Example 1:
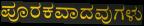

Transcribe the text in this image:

ಪೂರಕವಾದವುಗಳು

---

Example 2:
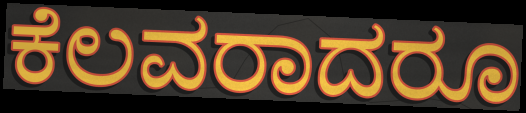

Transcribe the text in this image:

ಕೆಲವರಾದರೂ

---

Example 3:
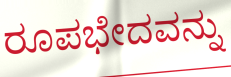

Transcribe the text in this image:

ರೂಪಭೇದವನ್ನು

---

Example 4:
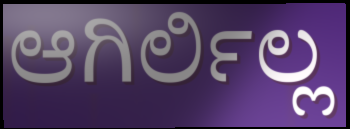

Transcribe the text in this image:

ಆಗಿರ್ಲಿಲ್ಲ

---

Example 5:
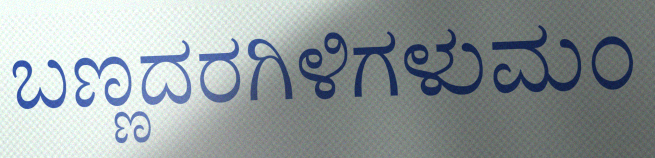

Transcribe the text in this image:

ಬಣ್ಣದರಗಿಳಿಗಳುಮಂ